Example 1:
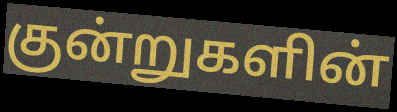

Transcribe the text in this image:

குன்றுகளின்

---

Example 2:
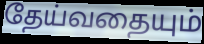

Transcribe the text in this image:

தேய்வதையும்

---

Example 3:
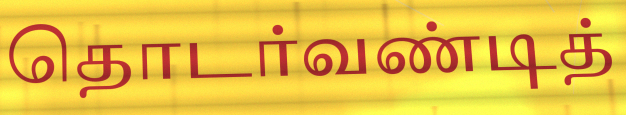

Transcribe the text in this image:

தொடர்வண்டித்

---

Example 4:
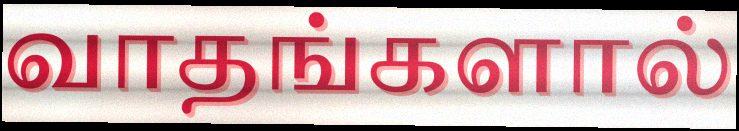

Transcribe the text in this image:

வாதங்களால்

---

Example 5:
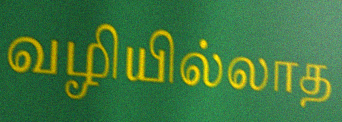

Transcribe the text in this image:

வழியில்லாத